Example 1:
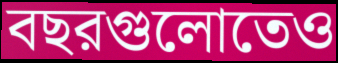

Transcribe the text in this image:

বছরগুলোতেও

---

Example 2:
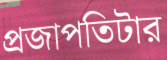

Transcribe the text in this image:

প্রজাপতিটার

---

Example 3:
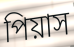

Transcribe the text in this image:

পিয়াস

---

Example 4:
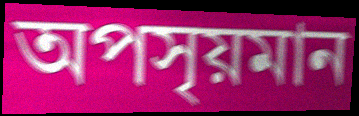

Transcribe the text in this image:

অপসৃয়মান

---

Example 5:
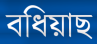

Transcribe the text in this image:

বধিয়াছ